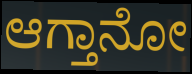
ಆಗ್ತಾನೋ